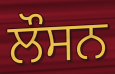
ਲੌਸਨ